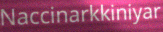
Naccinarkkiniyar